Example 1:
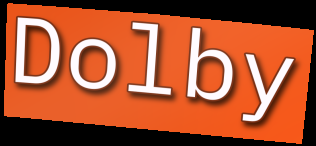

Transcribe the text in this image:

Dolby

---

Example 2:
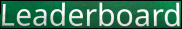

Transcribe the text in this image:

Leaderboard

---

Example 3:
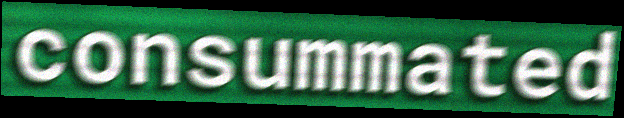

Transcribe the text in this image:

consummated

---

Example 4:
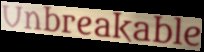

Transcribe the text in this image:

Unbreakable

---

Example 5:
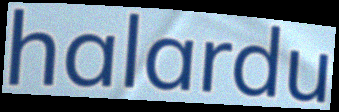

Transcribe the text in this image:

halardu